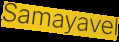
Samayavel